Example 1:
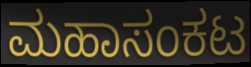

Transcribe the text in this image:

ಮಹಾಸಂಕಟ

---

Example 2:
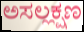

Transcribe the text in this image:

ಅಸಲ್ಲಕ್ಷಣ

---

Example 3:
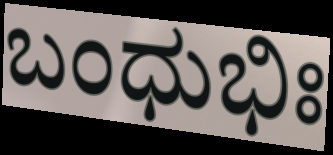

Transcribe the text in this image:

ಬಂಧುಭಿಃ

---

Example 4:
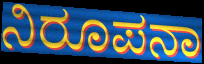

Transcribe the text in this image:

ನಿರೂಪನಾ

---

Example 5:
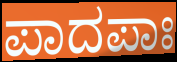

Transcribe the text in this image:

ಪಾದಪಾಃ